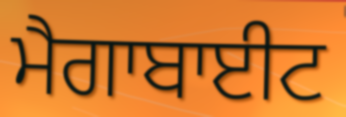
ਮੈਗਾਬਾਈਟ